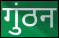
गुंठन